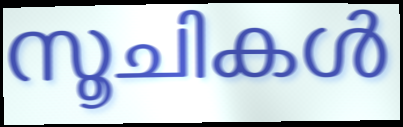
സൂചികൾ